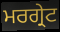
ਮਰਗ੍ਰੇਟ